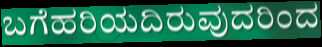
ಬಗೆಹರಿಯದಿರುವುದರಿಂದ